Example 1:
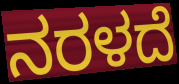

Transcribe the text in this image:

ನರಳದೆ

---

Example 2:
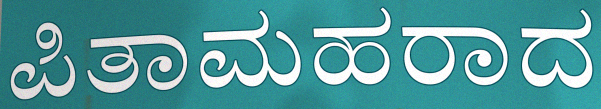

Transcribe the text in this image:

ಪಿತಾಮಹರಾದ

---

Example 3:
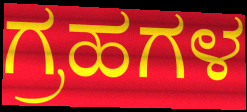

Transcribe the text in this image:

ಗ್ರಹಗಳ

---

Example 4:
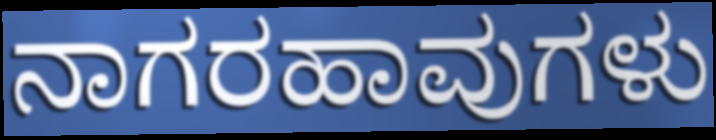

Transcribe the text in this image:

ನಾಗರಹಾವುಗಳು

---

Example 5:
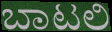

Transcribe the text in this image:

ಬಾಟಲಿ